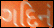
ગદિનં